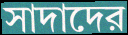
সাদাদের